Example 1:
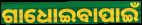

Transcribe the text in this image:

ଗାଧୋଇବାପାଇଁ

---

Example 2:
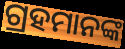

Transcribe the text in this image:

ଗ୍ରହମାନଙ୍କ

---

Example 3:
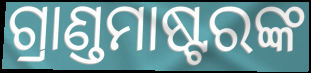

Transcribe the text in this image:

ଗ୍ରାଣ୍ଡମାଷ୍ଟରଙ୍କ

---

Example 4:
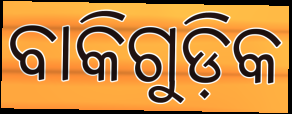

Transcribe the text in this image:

ବାକିଗୁଡ଼ିକ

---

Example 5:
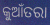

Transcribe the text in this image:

କୁଆଁତରା